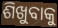
ଶିଖୁବାକୁ